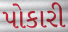
પોકારી